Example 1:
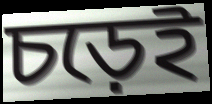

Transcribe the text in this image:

চড়েই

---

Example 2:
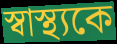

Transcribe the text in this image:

স্বাস্থ্যকে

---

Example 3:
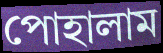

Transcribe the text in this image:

পোহালাম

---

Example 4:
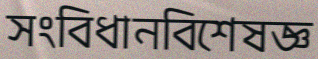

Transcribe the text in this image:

সংবিধানবিশেষজ্ঞ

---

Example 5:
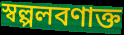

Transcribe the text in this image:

স্বল্পলবণাক্ত